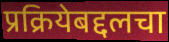
प्रक्रियेबद्दलचा